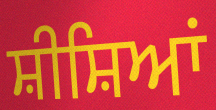
ਸ਼ੀਸ਼ਿਆਂ